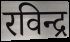
रविन्द्र